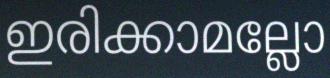
ഇരിക്കാമല്ലോ